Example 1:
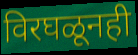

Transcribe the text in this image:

विरघळूनही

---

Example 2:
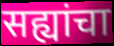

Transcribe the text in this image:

सह्यांचा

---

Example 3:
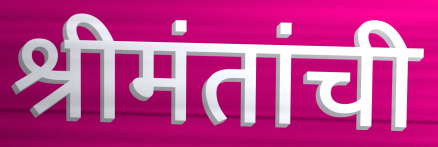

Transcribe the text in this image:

श्रीमंतांची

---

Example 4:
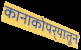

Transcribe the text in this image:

कानाकोपर्‍यातून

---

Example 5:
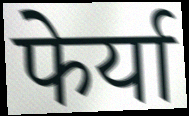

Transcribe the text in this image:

फेर्या